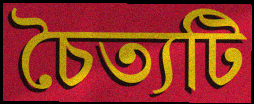
চৈত্যটি